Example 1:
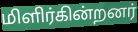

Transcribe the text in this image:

மிளிர்கின்றனர்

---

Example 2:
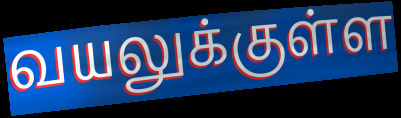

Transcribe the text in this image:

வயலுக்குள்ள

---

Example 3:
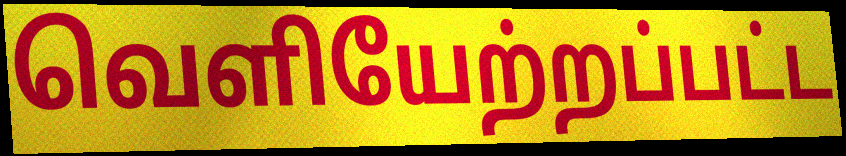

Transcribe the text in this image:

வெளியேற்றப்பட்ட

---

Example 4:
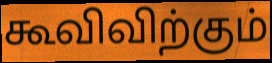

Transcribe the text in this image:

கூவிவிற்கும்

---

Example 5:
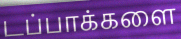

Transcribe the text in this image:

டப்பாக்களை